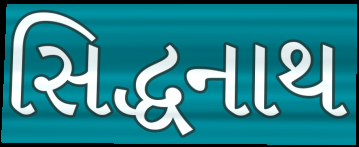
સિદ્ધનાથ